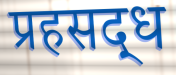
प्रहसद्ध